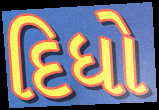
દિધો